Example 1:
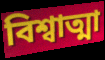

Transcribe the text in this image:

বিশ্বাত্মা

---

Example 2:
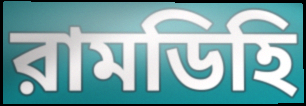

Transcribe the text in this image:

রামডিহি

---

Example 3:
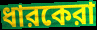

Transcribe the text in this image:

ধারকেরা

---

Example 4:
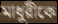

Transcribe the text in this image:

মাধুরীকে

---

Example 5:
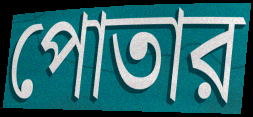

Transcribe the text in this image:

পোতার